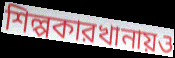
শিল্পকারখানায়ও